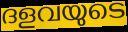
ദളവയുടെ